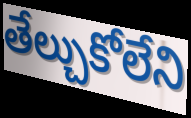
తేల్చుకోలేని